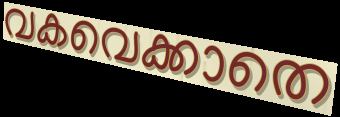
വകവെക്കാതെ